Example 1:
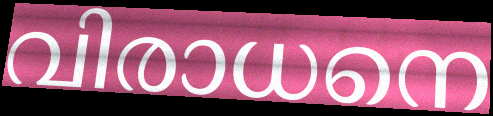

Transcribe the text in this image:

വിരാധനെ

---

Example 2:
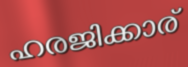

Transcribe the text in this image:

ഹരജിക്കാര്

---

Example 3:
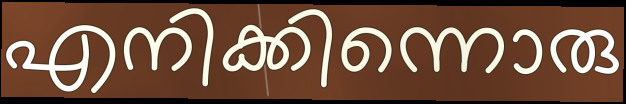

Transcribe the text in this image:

എനിക്കിന്നൊരു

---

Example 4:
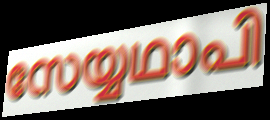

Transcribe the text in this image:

സേയ്യഥാപി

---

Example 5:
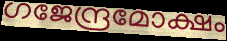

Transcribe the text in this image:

ഗജേന്ദ്രമോക്ഷം